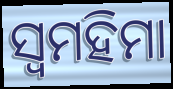
ସ୍ୱମହିମା